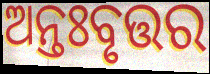
ଅନ୍ତଃବୃତ୍ତର